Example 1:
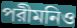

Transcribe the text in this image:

পরীমনিও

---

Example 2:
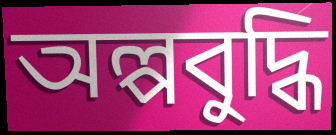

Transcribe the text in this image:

অল্পবুদ্ধি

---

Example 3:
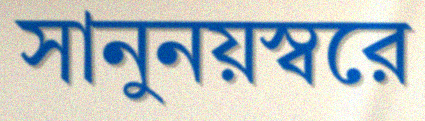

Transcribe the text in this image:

সানুনয়স্বরে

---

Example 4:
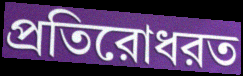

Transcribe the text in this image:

প্রতিরোধরত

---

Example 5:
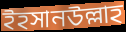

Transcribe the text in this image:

ইহসানউল্লাহ